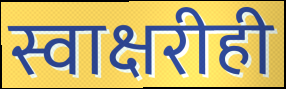
स्वाक्षरीही